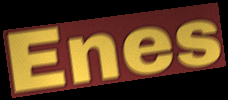
Enes